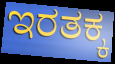
ಇರತಕ್ಕ